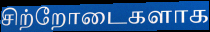
சிற்றோடைகளாக